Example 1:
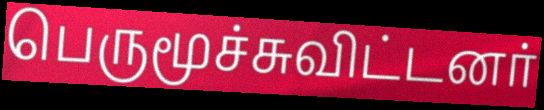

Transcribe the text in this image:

பெருமூச்சுவிட்டனர்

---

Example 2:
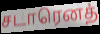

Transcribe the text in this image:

சடாரெனத்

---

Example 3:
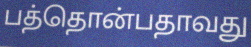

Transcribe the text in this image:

பத்தொன்பதாவது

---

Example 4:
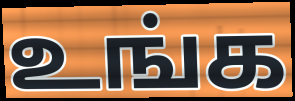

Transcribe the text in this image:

உங்க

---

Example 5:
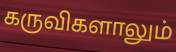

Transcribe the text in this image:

கருவிகளாலும்